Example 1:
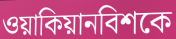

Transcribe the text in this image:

ওয়াকিয়ানবিশকে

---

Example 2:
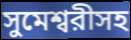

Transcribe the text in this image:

সুমেশ্বরীসহ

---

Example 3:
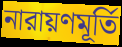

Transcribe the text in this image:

নারায়ণমূর্তি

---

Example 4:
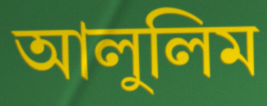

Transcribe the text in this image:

আলুলিম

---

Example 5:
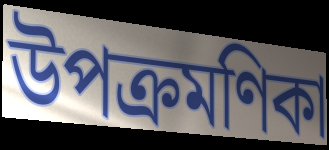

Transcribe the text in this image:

উপক্রমণিকা